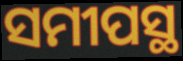
ସମୀପସ୍ଥ